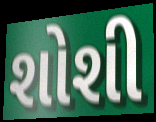
શોશી